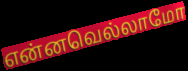
என்னவெல்லாமோ